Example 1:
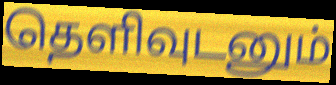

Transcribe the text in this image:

தெளிவுடனும்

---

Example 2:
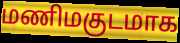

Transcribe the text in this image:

மணிமகுடமாக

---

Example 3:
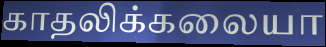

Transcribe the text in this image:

காதலிக்கலையா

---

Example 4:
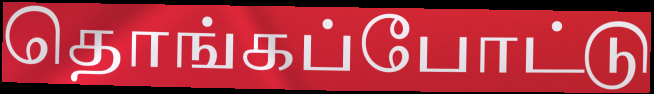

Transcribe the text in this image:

தொங்கப்போட்டு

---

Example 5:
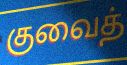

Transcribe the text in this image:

குவைத்